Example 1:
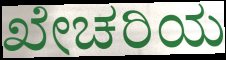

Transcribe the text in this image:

ಖೇಚರಿಯ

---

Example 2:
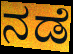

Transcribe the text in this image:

ನಡೆ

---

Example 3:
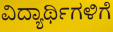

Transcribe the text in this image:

ವಿದ್ಯಾರ್ಥಿಗಳಿಗೆ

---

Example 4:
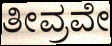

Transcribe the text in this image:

ತೀವ್ರವೇ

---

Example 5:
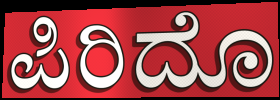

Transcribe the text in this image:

ಪಿರಿದೊ